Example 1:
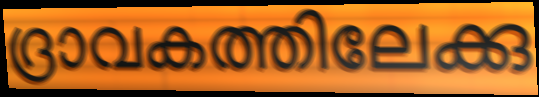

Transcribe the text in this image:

ദ്രാവകത്തിലേക്കു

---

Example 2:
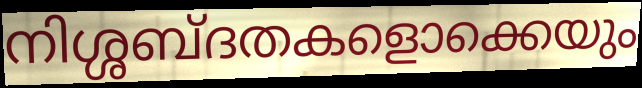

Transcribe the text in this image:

നിശ്ശബ്ദതകളൊക്കെയും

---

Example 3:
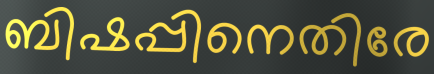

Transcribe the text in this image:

ബിഷപ്പിനെതിരേ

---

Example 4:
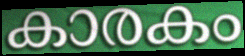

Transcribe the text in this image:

കാരകം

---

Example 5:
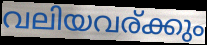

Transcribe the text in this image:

വലിയവര്ക്കും